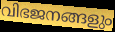
വിഭജനങ്ങളും